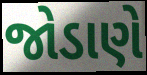
જોડાણે